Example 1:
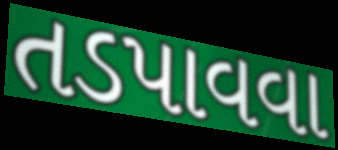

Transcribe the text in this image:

તડપાવવા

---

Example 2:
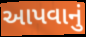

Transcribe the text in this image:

આપવાનું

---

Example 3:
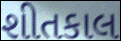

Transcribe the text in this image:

શીતકાલ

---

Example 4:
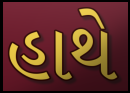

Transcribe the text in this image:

હાથે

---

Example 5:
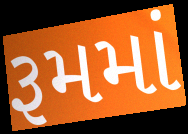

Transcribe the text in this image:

રૂમમાં